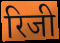
रिजी